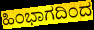
ಹಿಂಭಾಗದಿಂದ